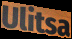
Ulitsa